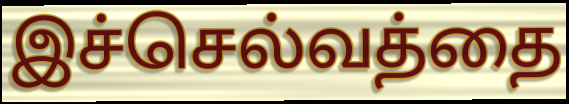
இச்செல்வத்தை